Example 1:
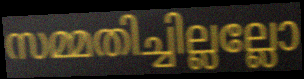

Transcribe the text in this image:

സമ്മതിച്ചില്ലല്ലോ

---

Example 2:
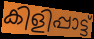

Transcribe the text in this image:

കിളിപ്പാട്ട്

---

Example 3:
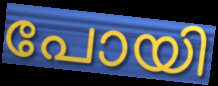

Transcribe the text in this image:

പോയി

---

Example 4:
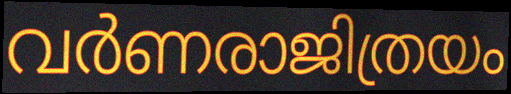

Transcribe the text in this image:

വർണരാജിത്രയം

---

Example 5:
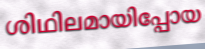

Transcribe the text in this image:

ശിഥിലമായിപ്പോയ